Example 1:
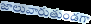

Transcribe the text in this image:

జాలువారుతుండగా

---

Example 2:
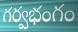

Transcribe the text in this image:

గర్వభంగం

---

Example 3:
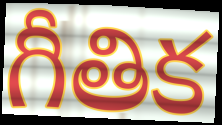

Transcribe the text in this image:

గీతిక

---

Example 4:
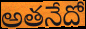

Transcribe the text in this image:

అతనేదో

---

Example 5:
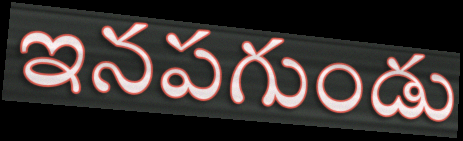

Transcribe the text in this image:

ఇనపగుండు